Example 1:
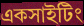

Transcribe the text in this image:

একসাইটিং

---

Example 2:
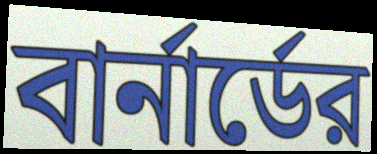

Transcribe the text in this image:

বার্নার্ডের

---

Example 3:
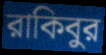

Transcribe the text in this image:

রাকিবুর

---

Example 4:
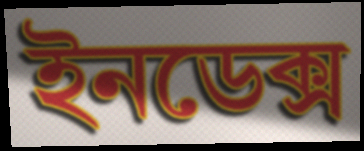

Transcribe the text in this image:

ইনডেক্স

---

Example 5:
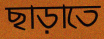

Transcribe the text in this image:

ছাড়াতে